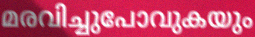
മരവിച്ചുപോവുകയും